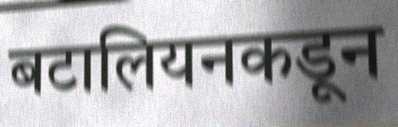
बटालियनकडून